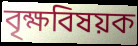
বৃক্ষবিষয়ক